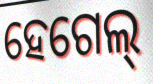
ହେଗେଲ୍